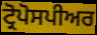
ਟ੍ਰੋਪੋਸਪੀਅਰ